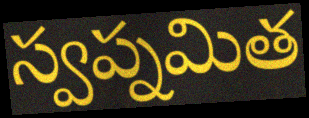
స్వప్నమిత